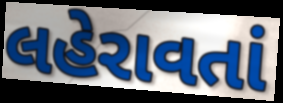
લહેરાવતાં